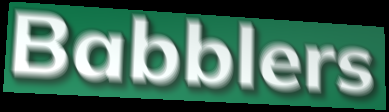
Babblers